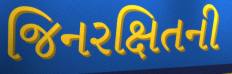
જિનરક્ષિતની